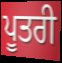
ਪੂਤਰੀ